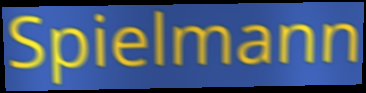
Spielmann